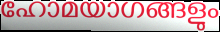
ഹോമയാഗങ്ങളും